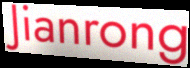
Jianrong